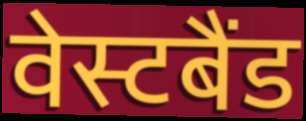
वेस्टबैंड